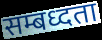
सम्बध्दता